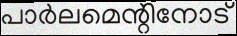
പാർലമെന്റിനോട്